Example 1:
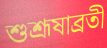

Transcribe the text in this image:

শুশ্রূষাব্রতী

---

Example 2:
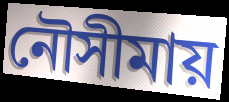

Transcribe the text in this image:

নৌসীমায়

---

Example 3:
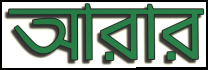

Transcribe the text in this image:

আরার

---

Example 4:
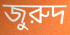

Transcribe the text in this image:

জুরুদ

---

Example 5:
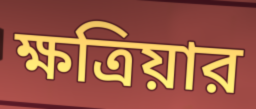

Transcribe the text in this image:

ক্ষত্রিয়ার